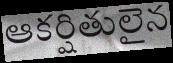
ఆకర్షితులైన